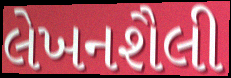
લેખનશૈલી